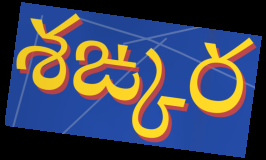
శఙ్కర